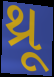
થ્રૂ